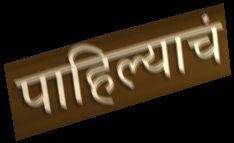
पाहिल्याचं